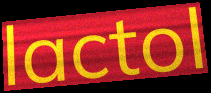
lactol